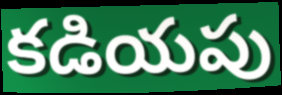
కడియపు